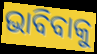
ଭାବିବାକୁ